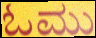
ಓಮು